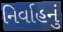
નિર્વાહનું